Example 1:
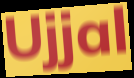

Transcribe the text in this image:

Ujjal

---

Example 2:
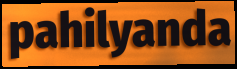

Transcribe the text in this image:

pahilyanda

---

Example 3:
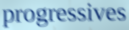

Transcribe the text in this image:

progressives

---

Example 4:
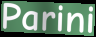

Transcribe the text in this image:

Parini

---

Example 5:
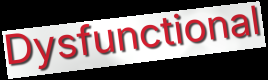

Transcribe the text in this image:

Dysfunctional